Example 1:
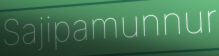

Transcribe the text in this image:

Sajipamunnur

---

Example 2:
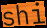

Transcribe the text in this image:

shi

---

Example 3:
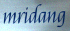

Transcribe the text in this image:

mridang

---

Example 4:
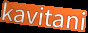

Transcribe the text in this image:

kavitani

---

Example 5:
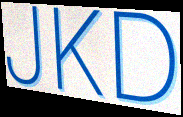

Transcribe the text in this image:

JKD